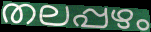
തലപ്പഴം